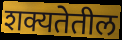
शक्यतेतील